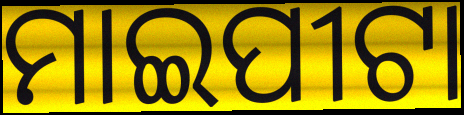
ମାଇପୀଟା